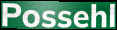
Possehl